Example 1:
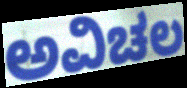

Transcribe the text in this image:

ಅವಿಚಲ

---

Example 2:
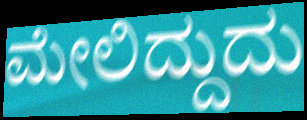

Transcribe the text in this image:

ಮೇಲಿದ್ದುದು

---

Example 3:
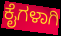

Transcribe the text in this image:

ಕೈಗಳಾಗಿ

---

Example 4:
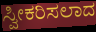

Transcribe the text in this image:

ಸ್ವೀಕರಿಸಲಾದ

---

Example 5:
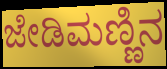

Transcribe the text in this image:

ಜೇಡಿಮಣ್ಣಿನ